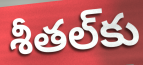
శీతల్‌కు